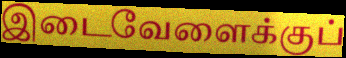
இடைவேளைக்குப்